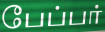
பேப்பர்